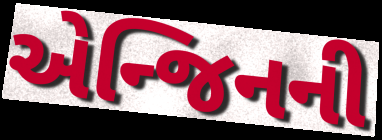
એન્જિનની